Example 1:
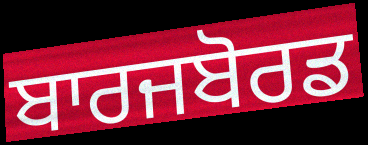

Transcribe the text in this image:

ਬਾਰਜਬੋਰਡ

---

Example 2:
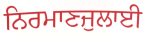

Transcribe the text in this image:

ਨਿਰਮਾਣਜੁਲਾਈ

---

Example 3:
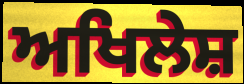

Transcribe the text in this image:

ਅਖਿਲੇਸ਼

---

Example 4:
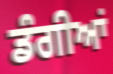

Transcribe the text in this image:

ਡੰਗੀਆਂ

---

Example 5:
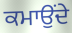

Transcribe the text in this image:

ਕਮਾਉਂਦੇ